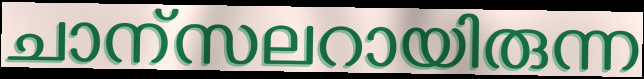
ചാന്സലറായിരുന്ന